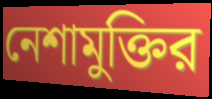
নেশামুক্তির